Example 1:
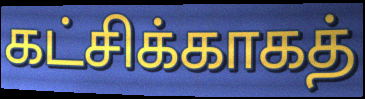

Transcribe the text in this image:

கட்சிக்காகத்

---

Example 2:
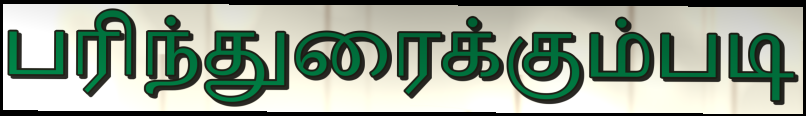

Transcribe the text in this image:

பரிந்துரைக்கும்படி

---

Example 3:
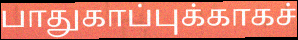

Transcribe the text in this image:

பாதுகாப்புக்காகச்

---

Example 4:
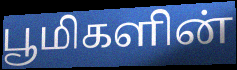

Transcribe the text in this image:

பூமிகளின்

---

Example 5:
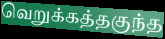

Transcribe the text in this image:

வெறுக்கத்தகுந்த